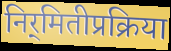
निर्मितीप्रक्रिया